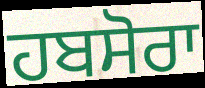
ਹਬਸੋਰਾ